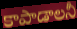
కాపాడాలనీ